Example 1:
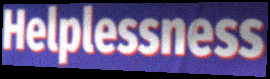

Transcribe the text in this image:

Helplessness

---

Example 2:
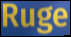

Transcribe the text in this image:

Ruge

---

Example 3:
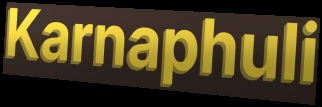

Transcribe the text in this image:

Karnaphuli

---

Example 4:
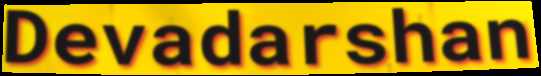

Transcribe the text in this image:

Devadarshan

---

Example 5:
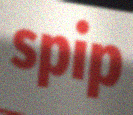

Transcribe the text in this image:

spip